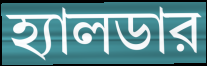
হ্যালডার